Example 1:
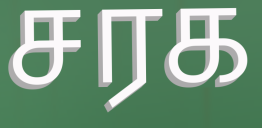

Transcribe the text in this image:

சரக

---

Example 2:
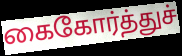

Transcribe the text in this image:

கைகோர்த்துச்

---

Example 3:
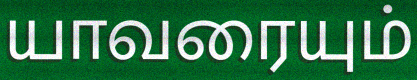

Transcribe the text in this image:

யாவரையும்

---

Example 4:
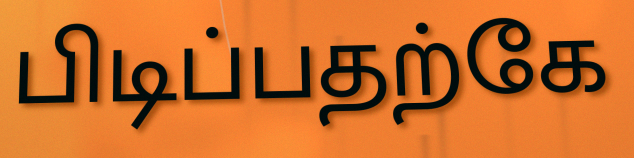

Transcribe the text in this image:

பிடிப்பதற்கே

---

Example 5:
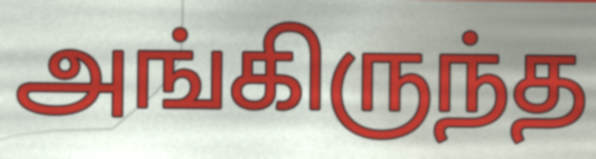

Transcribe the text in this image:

அங்கிருந்த